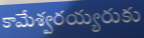
కామేశ్వరయ్యరుకు